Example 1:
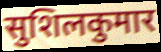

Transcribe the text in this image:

सुशिलकुमार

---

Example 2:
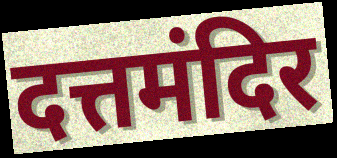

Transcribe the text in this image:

दत्तमंदिर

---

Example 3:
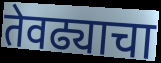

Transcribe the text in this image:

तेवढ्याचा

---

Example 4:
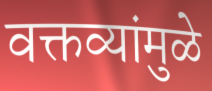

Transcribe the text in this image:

वक्तव्यांमुळे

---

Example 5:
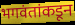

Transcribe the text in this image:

भगवंतांकडून